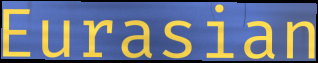
Eurasian